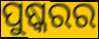
ପୁଷ୍କରର